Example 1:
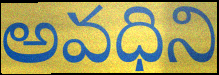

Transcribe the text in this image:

అవధిని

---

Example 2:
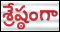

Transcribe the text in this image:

శ్రేష్ఠంగా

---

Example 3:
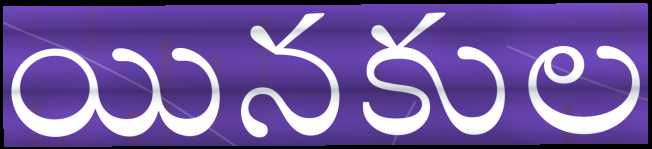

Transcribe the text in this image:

యినకుల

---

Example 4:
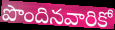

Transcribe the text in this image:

పొందినవారికో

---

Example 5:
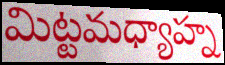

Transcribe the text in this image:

మిట్టమధ్యాహ్న